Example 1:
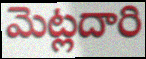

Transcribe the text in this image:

మెట్లదారి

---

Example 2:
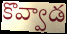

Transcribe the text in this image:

కొవ్వాడ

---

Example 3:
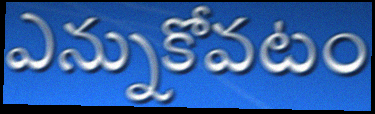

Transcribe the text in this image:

ఎన్నుకోవటం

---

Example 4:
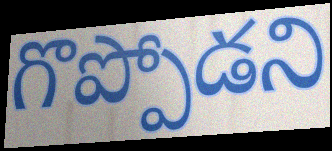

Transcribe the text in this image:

గొప్పోడని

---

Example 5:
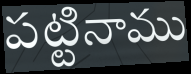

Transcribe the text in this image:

పట్టినాము